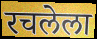
रचलेला